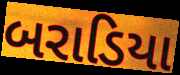
બરાડિયા